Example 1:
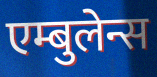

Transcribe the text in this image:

एम्बुलेन्स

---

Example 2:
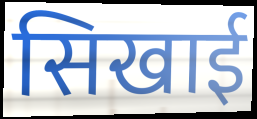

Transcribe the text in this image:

सिखाई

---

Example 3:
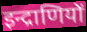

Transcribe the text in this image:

इन्द्राणियों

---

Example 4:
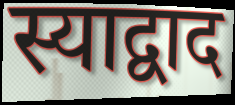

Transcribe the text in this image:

स्याद्वाद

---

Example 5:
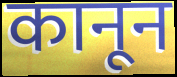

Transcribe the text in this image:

कानून